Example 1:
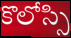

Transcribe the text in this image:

కొలోస్సి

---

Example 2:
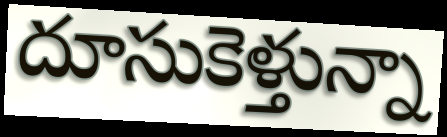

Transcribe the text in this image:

దూసుకెళ్తున్నా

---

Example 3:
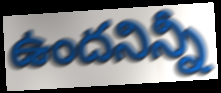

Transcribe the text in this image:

ఉందనిన్నీ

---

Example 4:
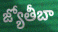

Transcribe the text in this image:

జ్యోతీబా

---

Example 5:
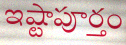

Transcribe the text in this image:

ఇష్టాపూర్తం